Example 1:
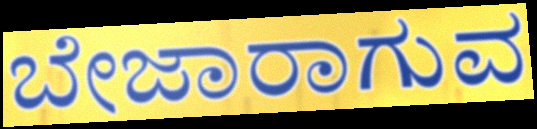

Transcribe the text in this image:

ಬೇಜಾರಾಗುವ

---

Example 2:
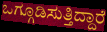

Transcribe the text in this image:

ಒಗ್ಗೂಡಿಸುತ್ತಿದ್ದಾರೆ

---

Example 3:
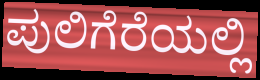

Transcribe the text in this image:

ಪುಲಿಗೆರೆಯಲ್ಲಿ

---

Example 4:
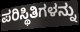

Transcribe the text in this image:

ಪರಿಸ್ಥಿತಿಗಳನ್ನು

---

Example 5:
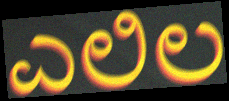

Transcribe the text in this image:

ಎಲಿಲ